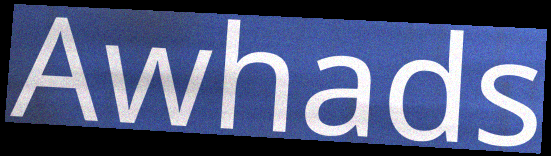
Awhads